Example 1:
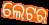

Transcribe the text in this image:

ଲେଟର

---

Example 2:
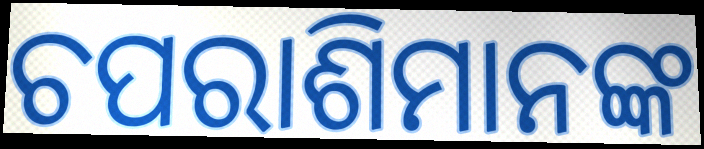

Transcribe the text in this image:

ଚପରାଶିମାନଙ୍କ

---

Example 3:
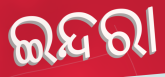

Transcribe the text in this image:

ଇନ୍ଦରା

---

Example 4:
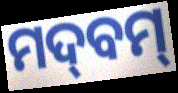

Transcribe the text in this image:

ମଦ୍‌ବମ୍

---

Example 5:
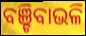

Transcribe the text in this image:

ବଞ୍ଚିବାଭଳି